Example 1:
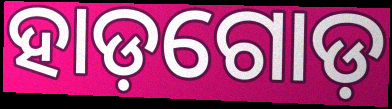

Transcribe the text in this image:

ହାଡ଼ଗୋଡ଼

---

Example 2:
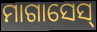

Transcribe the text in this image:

ମାଗାସେସ୍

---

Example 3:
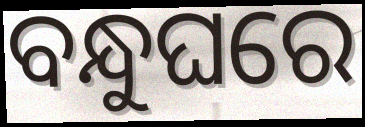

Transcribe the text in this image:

ବନ୍ଧୁଘରେ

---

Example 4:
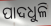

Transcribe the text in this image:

ପାଦଧୁଳି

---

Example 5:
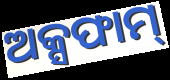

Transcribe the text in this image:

ଅକ୍ସଫାମ୍